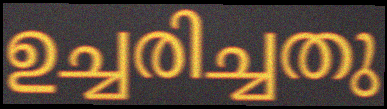
ഉച്ചരിച്ചതു